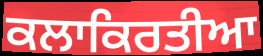
ਕਲਾਕਿਰਤੀਆ